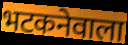
भटकनेवाला